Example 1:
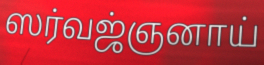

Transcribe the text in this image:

ஸர்வஜ்ஞனாய்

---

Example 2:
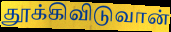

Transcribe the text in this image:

தூக்கிவிடுவான்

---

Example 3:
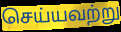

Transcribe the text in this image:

செய்யவற்று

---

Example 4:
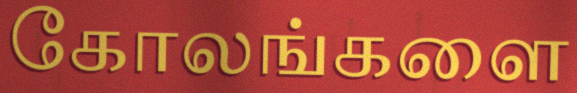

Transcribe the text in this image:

கோலங்களை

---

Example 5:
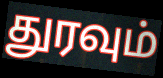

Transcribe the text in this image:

துரவும்